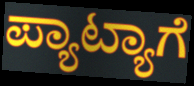
ಪ್ಯಾಟ್ಯಾಗೆ